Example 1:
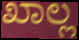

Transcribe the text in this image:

ಖಾಲ್ಲ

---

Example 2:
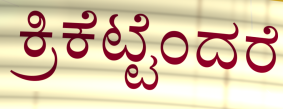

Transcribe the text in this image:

ಕ್ರಿಕೆಟ್ಟೆಂದರೆ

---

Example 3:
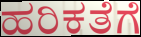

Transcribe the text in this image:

ಹರಿಕತೆಗೆ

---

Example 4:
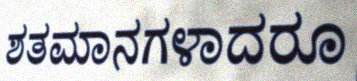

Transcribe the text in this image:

ಶತಮಾನಗಳಾದರೂ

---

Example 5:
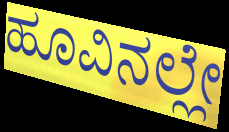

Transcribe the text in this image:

ಹೂವಿನಲ್ಲೇ